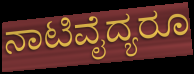
ನಾಟಿವೈದ್ಯರೂ